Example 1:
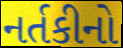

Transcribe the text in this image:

નર્તકીનો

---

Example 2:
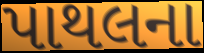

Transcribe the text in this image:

પાથલના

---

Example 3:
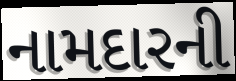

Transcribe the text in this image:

નામદારની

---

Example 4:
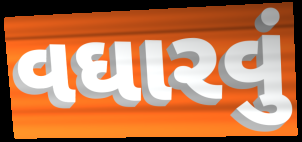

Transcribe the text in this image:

વઘારવું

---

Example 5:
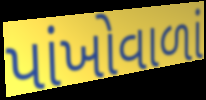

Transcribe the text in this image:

પાંખોવાળાં